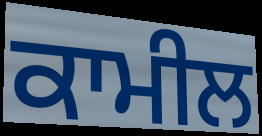
ਕਾਮੀਲ